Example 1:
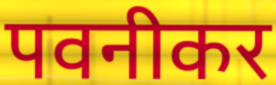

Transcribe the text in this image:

पवनीकर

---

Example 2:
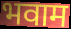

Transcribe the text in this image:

भवाम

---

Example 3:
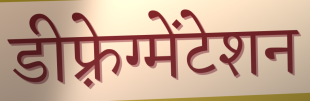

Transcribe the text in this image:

डीफ़्रेग्मेंटेशन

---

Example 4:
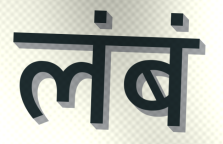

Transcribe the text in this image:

लंबं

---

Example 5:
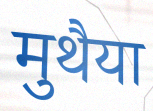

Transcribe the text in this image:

मुथैया